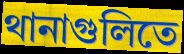
থানাগুলিতে